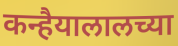
कन्हैयालालच्या